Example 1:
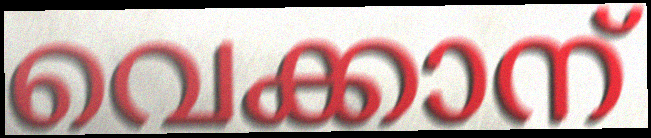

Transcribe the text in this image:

വെക്കാന്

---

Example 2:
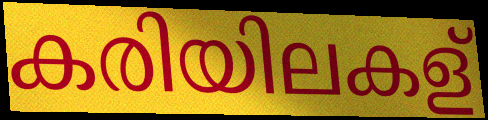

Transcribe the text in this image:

കരിയിലകള്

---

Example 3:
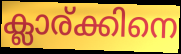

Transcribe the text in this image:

ക്ലാര്ക്കിനെ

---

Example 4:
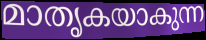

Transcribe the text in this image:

മാതൃകയാകുന്ന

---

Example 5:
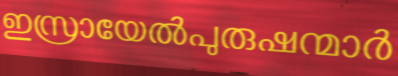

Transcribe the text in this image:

ഇസ്രായേൽപുരുഷന്മാർ